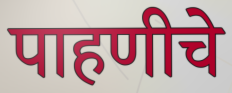
पाहणीचे